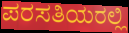
ಪರಸತಿಯರಲ್ಲಿ